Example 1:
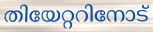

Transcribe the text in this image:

തിയേറ്ററിനോട്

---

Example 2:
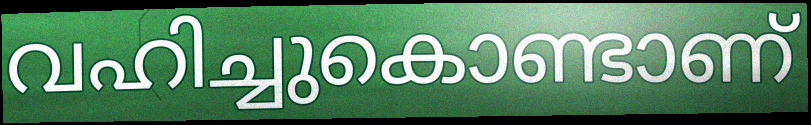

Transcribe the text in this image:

വഹിച്ചുകൊണ്ടാണ്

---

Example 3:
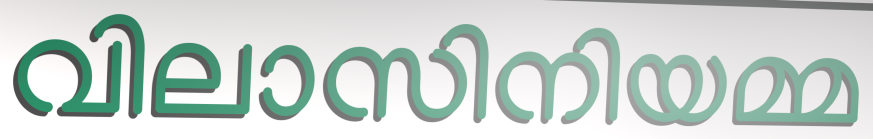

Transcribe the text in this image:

വിലാസിനിയമ്മ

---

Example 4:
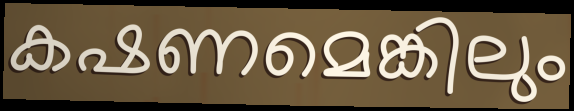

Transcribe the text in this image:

കഷണമെങ്കിലും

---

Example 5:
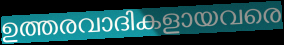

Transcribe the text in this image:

ഉത്തരവാദികളായവരെ